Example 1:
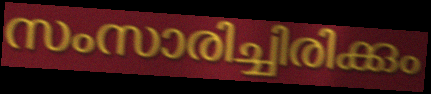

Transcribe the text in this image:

സംസാരിച്ചിരിക്കും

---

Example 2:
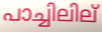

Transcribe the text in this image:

പാച്ചിലില്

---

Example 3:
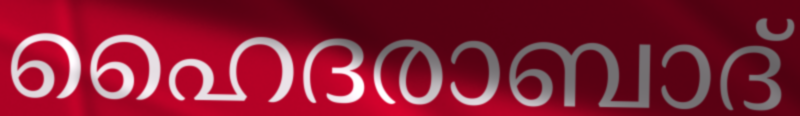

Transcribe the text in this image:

ഹൈദരാബാദ്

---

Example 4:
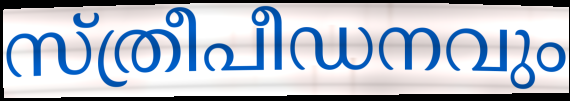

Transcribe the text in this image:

സ്ത്രീപീഡനവും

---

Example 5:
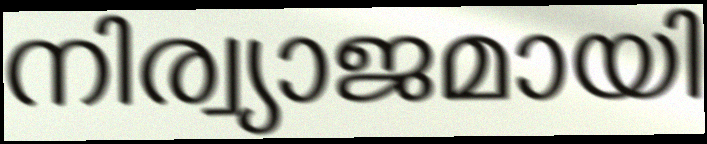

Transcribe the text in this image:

നിര്വ്യാജമായി